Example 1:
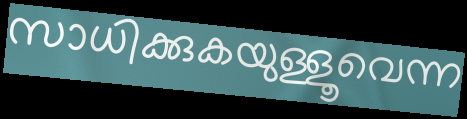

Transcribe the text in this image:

സാധിക്കുകയുള്ളൂവെന്ന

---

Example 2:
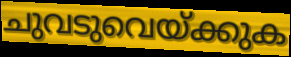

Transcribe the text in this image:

ചുവടുവെയ്ക്കുക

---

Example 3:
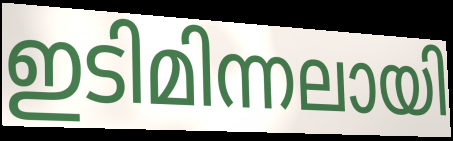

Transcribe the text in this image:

ഇടിമിന്നലായി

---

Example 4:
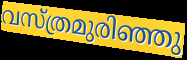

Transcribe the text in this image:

വസ്ത്രമുരിഞ്ഞു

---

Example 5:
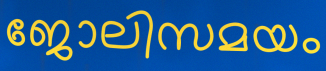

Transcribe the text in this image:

ജോലിസമയം